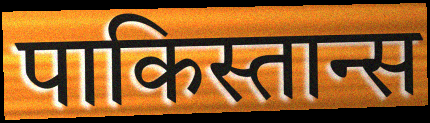
पाकिस्तान्स